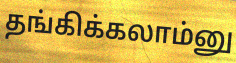
தங்கிக்கலாம்னு